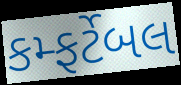
કમ્ફર્ટેબલ